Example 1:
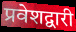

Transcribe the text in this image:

प्रवेशद्वारी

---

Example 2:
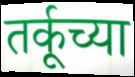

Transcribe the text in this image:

तर्कूच्या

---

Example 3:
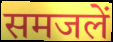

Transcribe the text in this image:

समजलें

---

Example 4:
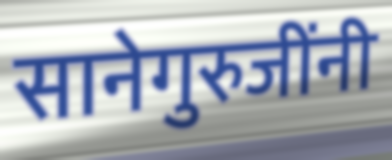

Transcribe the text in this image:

सानेगुरुजींनी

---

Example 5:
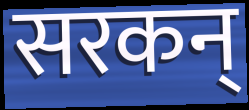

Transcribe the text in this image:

सरकन्